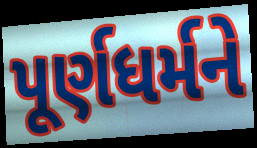
પૂર્ણધર્મને